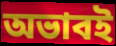
অভাবই